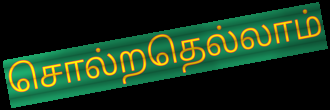
சொல்றதெல்லாம்